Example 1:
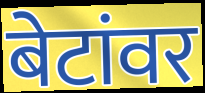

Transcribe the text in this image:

बेटांवर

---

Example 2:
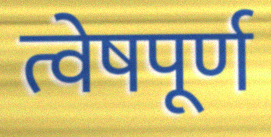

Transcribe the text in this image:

त्वेषपूर्ण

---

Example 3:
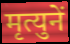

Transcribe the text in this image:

मृत्युनें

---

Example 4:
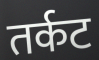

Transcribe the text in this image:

तर्कट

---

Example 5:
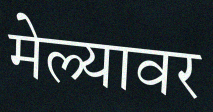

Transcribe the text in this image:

मेल्यावर